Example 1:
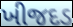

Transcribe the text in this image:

ખીજદડ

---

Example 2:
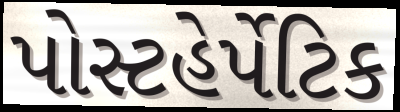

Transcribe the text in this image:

પોસ્ટહેર્પેટિક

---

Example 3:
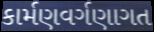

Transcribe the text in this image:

કાર્મણવર્ગણાગત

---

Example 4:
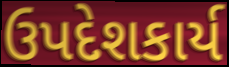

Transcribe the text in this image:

ઉપદેશકાર્ય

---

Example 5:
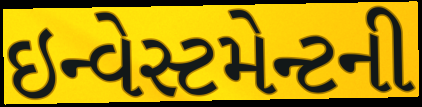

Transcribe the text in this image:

ઇન્વેસ્ટમેન્ટની